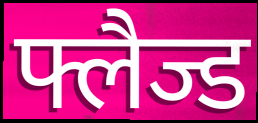
फ्लैज्ड